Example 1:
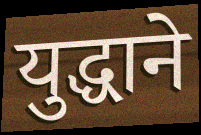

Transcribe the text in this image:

युद्धाने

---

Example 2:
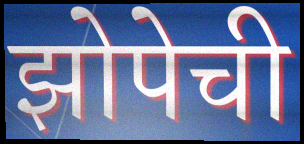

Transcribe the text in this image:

झोपेची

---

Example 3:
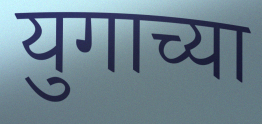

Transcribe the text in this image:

युगाच्या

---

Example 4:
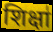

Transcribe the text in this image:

शिक्षा॑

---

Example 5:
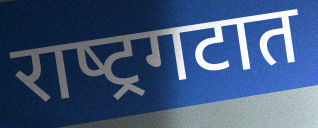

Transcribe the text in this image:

राष्ट्रगटात